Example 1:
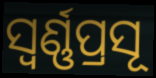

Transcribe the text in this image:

ସ୍ୱର୍ଣ୍ଣପ୍ରସୂ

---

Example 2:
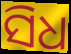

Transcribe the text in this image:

ସିଧ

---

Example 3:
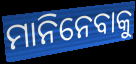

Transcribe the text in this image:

ମାନିନେବାକୁ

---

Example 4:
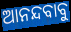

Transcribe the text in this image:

ଆନନ୍ଦବାବୁ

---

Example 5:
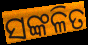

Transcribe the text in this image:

ସଙ୍କଳିତ